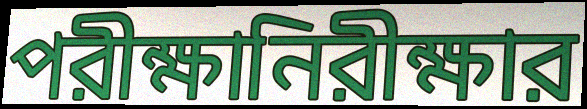
পরীক্ষানিরীক্ষার